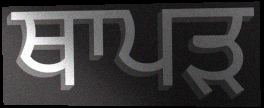
ਥਾਪੜ